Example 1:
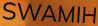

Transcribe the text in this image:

SWAMIH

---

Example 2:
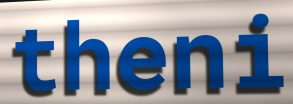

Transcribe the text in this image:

theni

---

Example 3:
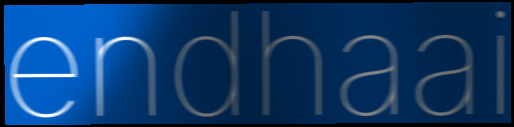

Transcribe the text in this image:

endhaai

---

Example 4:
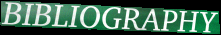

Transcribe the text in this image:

BIBLIOGRAPHY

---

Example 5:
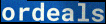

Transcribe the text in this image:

ordeals